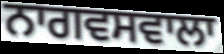
ਨਾਗਵਸਵਾਲਾ